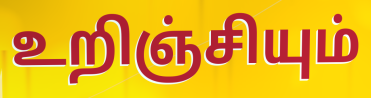
உறிஞ்சியும்